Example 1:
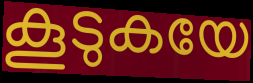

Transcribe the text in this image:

കൂടുകയേ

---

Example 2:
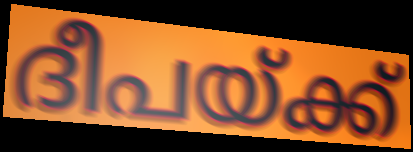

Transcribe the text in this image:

ദീപയ്ക്ക്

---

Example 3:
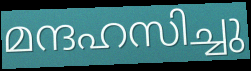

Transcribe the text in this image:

മന്ദഹസിച്ചു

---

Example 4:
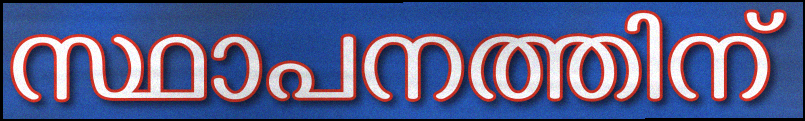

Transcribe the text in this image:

സ്ഥാപനത്തിന്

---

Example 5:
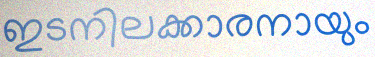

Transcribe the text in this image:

ഇടനിലക്കാരനായും